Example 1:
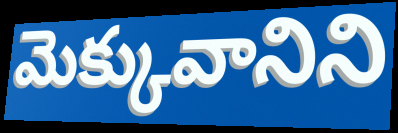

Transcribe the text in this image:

మెక్కువానిని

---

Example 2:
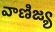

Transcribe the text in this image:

వాణిజ్య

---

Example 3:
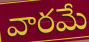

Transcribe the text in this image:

వారమే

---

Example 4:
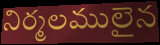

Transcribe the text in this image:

నిర్మలములైన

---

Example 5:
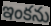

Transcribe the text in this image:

ఇంకను